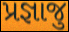
પ્રજ્ઞાજુ